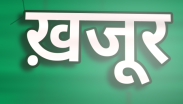
ख़जूर